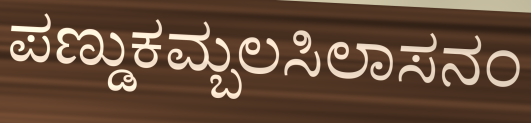
ಪಣ್ಡುಕಮ್ಬಲಸಿಲಾಸನಂ